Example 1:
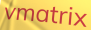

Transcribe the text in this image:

vmatrix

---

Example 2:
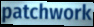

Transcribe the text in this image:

patchwork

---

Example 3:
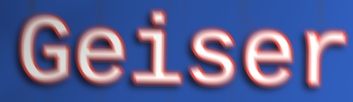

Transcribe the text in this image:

Geiser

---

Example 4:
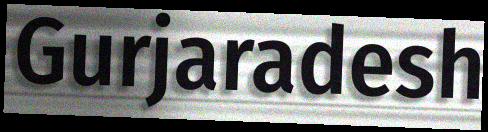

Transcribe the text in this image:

Gurjaradesh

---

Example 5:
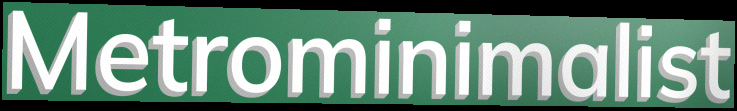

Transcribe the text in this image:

Metrominimalist